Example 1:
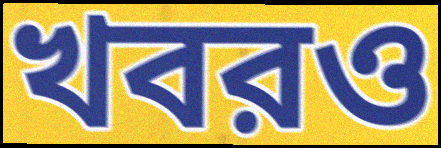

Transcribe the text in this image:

খবরও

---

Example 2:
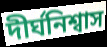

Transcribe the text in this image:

দীর্ঘনিশ্বাস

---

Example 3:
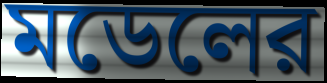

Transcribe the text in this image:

মডেলের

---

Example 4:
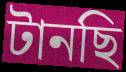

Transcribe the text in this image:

টানছি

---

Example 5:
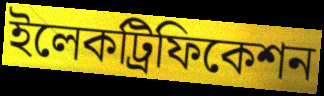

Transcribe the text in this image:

ইলেকট্রিফিকেশন